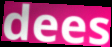
dees